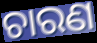
ଚାରଣ